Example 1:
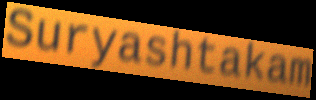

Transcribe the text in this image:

Suryashtakam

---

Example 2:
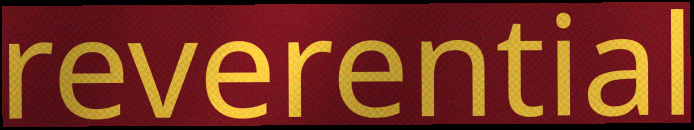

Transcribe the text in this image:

reverential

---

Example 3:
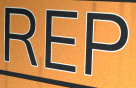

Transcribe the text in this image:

REP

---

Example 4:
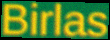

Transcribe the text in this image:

Birlas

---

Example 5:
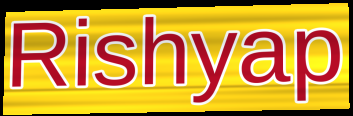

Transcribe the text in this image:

Rishyap